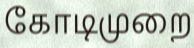
கோடிமுறை